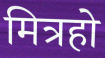
मित्रहो